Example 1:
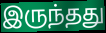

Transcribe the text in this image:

இருந்தது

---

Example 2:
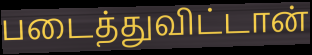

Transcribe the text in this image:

படைத்துவிட்டான்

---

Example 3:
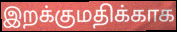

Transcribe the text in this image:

இறக்குமதிக்காக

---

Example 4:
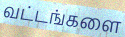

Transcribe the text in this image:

வட்டங்களை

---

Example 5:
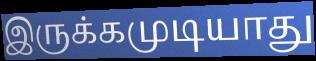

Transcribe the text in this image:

இருக்கமுடியாது